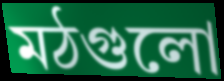
মঠগুলো